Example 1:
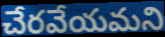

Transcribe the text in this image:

చేరవేయమని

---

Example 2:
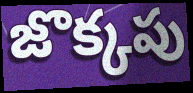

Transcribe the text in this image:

జొక్కపు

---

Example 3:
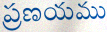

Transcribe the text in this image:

ప్రణయము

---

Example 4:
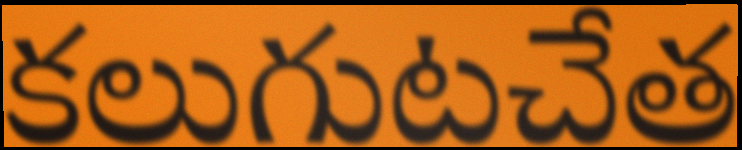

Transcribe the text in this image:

కలుగుటచేత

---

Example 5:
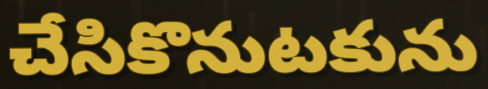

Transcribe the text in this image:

చేసికొనుటకును